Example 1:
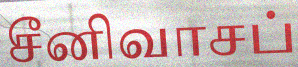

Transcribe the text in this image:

சீனிவாசப்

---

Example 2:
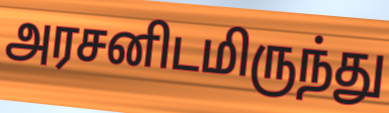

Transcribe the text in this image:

அரசனிடமிருந்து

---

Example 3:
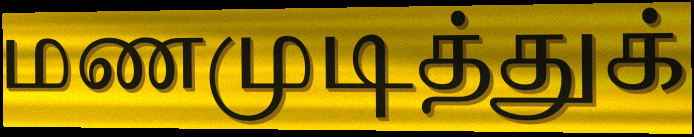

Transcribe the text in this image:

மணமுடித்துக்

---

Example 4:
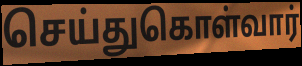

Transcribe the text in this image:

செய்துகொள்வார்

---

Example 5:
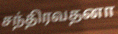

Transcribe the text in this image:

சந்திரவதனா